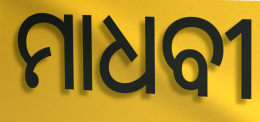
ମାଧବୀ